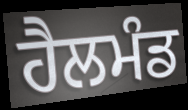
ਹੈਲਮੰਡ